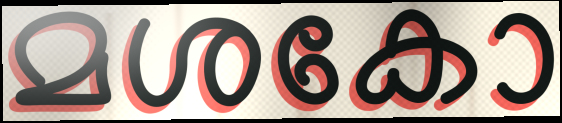
മശകോ